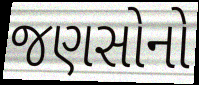
જણસોનો